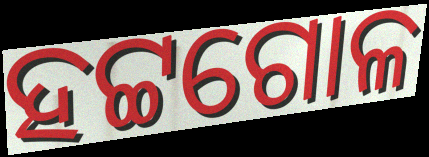
ହଟ୍ଟଗୋଳ